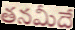
తనమీదే